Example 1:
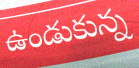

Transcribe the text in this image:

ఉండుకున్న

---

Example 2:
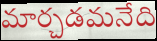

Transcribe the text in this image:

మార్చడమనేది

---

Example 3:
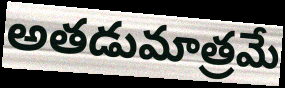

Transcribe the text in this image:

అతడుమాత్రమే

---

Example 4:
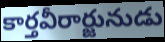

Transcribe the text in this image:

కార్తవీరార్జునుడు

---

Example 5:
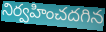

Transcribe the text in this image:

నిర్వహించదగిన